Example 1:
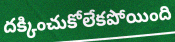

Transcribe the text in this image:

దక్కించుకోలేకపోయింది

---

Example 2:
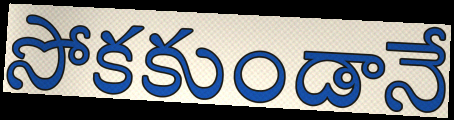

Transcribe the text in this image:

సోకకుండానే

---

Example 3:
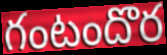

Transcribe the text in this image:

గంటందొర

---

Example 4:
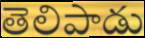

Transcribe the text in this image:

తెలిపాడు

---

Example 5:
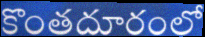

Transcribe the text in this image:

కొంతదూరంలో